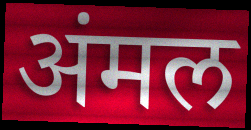
अंमल